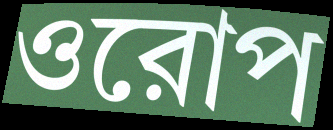
ওরোপ